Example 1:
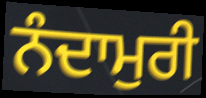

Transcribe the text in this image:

ਨੰਦਾਮੁਰੀ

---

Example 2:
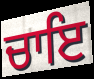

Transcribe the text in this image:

ਚਾਇ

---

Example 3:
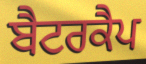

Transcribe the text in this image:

ਬੈਟਰਕੈਪ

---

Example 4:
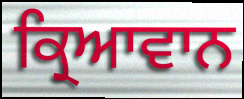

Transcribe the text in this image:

ਕ੍ਰਿਆਵਾਨ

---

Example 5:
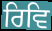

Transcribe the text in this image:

ਰਿਵਿ